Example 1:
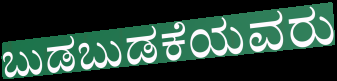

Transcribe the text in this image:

ಬುಡಬುಡಕೆಯವರು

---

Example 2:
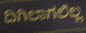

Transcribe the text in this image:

ದಿಗಿಲಾಗಲಿಲ್ಲ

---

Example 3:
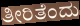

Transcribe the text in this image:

ತೀರಿತೆಂದು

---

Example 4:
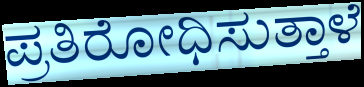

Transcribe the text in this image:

ಪ್ರತಿರೋಧಿಸುತ್ತಾಳೆ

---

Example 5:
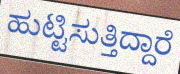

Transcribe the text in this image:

ಹುಟ್ಟಿಸುತ್ತಿದ್ದಾರೆ